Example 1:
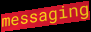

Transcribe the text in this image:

messaging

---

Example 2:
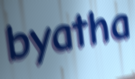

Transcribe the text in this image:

byatha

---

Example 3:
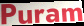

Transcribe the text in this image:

Puram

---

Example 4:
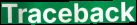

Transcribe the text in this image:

Traceback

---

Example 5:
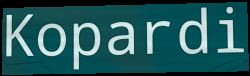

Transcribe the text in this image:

Kopardi